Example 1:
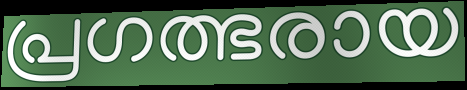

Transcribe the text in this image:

പ്രഗത്ഭരായ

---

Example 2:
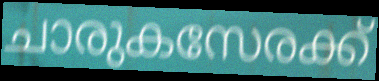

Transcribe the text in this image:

ചാരുകസേരക്ക്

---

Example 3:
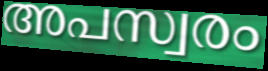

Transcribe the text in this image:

അപസ്വരം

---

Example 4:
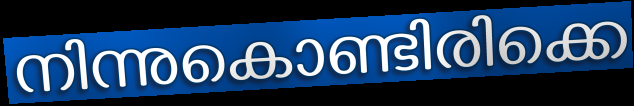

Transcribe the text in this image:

നിന്നുകൊണ്ടിരിക്കെ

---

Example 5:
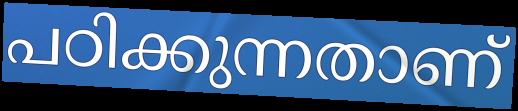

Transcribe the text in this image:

പഠിക്കുന്നതാണ്